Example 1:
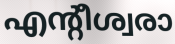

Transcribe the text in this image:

എന്റീശ്വരാ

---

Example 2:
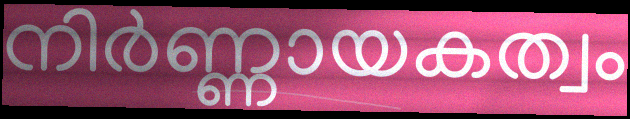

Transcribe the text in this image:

നിർണ്ണായകത്വം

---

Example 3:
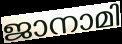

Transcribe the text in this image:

ജാനാമി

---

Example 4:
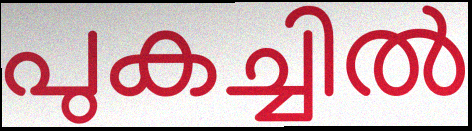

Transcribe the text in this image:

പുകച്ചിൽ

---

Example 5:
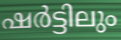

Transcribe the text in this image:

ഷർട്ടിലും